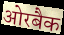
ओरबैक